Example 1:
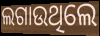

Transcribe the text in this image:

ଲଗାଉଥିଲେ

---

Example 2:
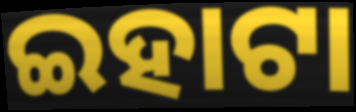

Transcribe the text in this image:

ଇହାଟା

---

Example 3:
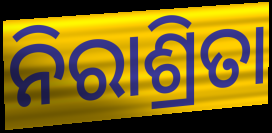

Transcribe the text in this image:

ନିରାଶ୍ରିତା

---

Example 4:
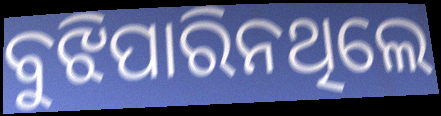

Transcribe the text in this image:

ବୁଝିପାରିନଥିଲେ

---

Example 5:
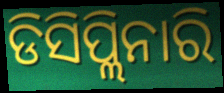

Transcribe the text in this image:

ଡିସିପ୍ଲିନାରି